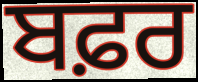
ਬਫ਼ਰ